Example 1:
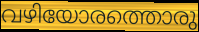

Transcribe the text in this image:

വഴിയോരത്തൊരു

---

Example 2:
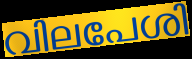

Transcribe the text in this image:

വിലപേശി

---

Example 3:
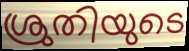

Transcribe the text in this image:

ശ്രുതിയുടെ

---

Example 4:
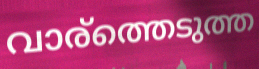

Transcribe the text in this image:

വാര്ത്തെടുത്ത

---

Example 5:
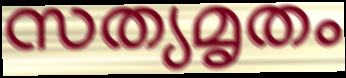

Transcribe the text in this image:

സത്യമൃതം